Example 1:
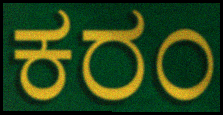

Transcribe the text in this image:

ಕರಂ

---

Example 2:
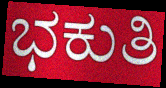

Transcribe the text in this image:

ಭಕುತಿ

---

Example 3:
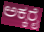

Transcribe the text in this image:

ಅಕ್ಕರೈ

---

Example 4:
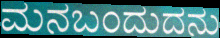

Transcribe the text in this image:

ಮನಬಂದುದನು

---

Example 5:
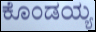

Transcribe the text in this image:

ಕೊಂಡಯ್ಯ